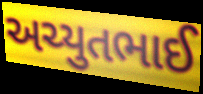
અચ્યુતભાઈ